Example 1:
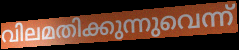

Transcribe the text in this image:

വിലമതിക്കുന്നുവെന്ന്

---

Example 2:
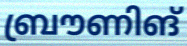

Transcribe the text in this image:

ബ്രൗണിങ്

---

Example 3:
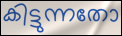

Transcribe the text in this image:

കിട്ടുന്നതോ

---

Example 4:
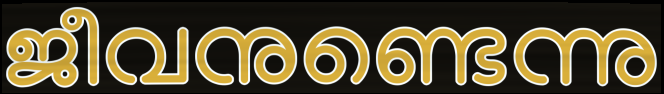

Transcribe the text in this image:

ജീവനുണ്ടെന്നു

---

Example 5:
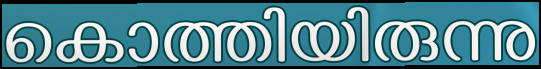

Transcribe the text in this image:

കൊത്തിയിരുന്നു